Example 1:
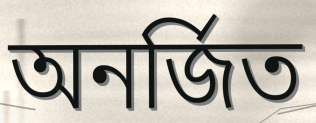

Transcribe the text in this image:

অনর্জিত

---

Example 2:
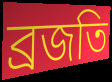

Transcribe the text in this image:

ব্রজতি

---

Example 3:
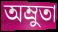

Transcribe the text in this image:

অম্রুতা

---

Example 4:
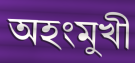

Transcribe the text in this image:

অহংমুখী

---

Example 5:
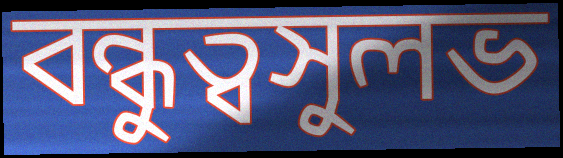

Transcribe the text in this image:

বন্ধুত্বসুলভ